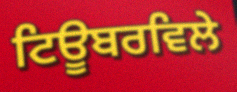
ਟਿਊਬਰਵਿਲੇ